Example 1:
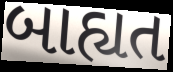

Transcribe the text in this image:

બાહ્યત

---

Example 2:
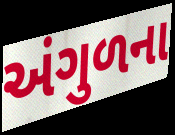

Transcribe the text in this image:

અંગુળના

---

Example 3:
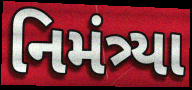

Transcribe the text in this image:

નિમંત્ર્યા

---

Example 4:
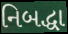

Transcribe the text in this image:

નિબદ્ધા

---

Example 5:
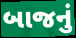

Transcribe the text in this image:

બાજનું